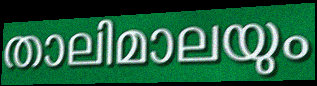
താലിമാലയും